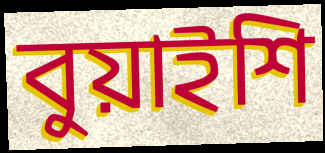
বুয়াইশি